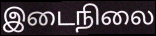
இடைநிலை